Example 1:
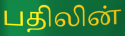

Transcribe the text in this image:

பதிலின்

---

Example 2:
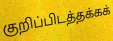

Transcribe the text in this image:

குறிப்பிடத்தக்கக்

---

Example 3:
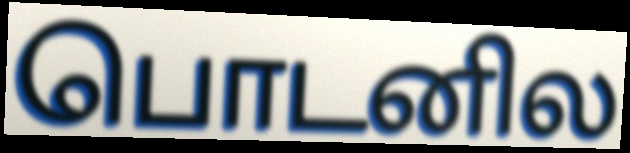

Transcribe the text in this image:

பொடனில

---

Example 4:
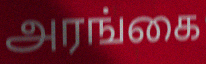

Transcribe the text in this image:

அரங்கை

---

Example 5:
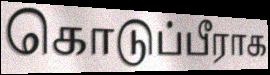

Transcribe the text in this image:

கொடுப்பீராக